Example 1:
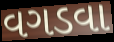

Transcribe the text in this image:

વગડવા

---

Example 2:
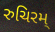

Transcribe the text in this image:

રુચિરમ્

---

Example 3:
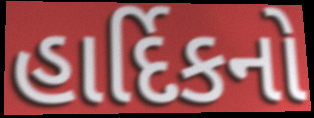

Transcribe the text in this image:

હાર્દિકનો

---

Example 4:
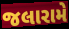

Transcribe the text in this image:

જલારામે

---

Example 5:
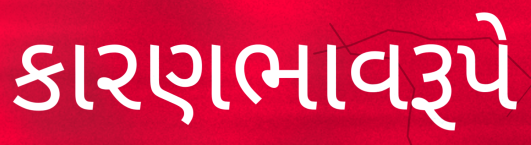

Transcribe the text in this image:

કારણભાવરૂપે